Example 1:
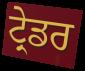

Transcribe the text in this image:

ਟ੍ਰੇਡਰ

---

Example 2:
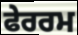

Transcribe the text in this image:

ਫੇਰਰਮ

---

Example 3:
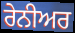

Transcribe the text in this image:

ਰੇਨੀਅਰ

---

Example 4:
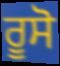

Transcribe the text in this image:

ਰੂਸੋ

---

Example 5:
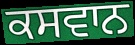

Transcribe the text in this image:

ਕਸਵਾਨ